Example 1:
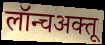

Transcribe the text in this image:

लॉन्चअक्तू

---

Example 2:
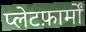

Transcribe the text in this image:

प्लेटफ़ार्मों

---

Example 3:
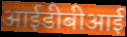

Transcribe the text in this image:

आईडीबीआई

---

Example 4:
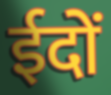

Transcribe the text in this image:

ईदों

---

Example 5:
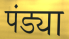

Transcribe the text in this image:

पंड्या